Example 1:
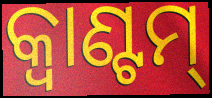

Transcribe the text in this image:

କ୍ଵାଣ୍ଟମ୍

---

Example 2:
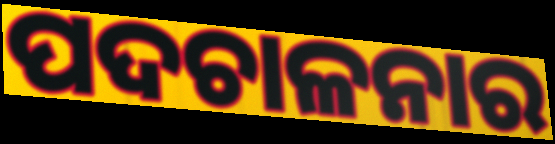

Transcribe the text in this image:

ପଦଚାଳନାର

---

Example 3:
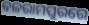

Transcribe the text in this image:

ବଳରାମପୁରରେ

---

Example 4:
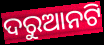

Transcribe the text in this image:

ଦରୁଆନଟି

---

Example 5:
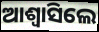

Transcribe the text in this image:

ଆଶ୍ୱାସିଲେ